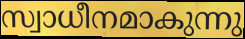
സ്വാധീനമാകുന്നു